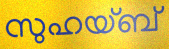
സുഹയ്ബ്